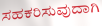
ಸಹಕರಿಸುವುದಾಗಿ